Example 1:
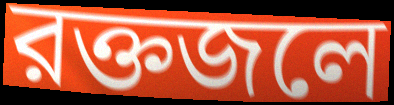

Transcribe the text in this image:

রক্তজলে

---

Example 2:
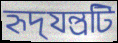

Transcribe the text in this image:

হৃদ্‌যন্ত্রটি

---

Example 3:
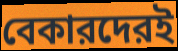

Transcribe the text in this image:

বেকারদেরই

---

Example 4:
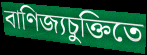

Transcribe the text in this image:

বাণিজ্যচুক্তিতে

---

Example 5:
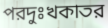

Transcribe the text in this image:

পরদুঃখকাতর